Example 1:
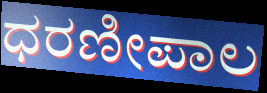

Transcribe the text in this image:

ಧರಣೀಪಾಲ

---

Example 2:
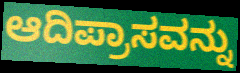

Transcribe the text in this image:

ಆದಿಪ್ರಾಸವನ್ನು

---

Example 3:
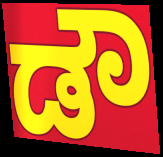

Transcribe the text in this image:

ಡೌ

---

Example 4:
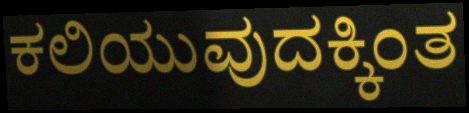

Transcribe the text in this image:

ಕಲಿಯುವುದಕ್ಕಿಂತ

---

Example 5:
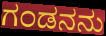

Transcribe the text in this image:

ಗಂಡನನು